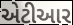
એટીઆર